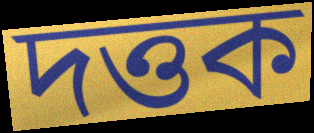
দত্তক